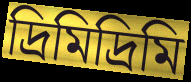
দ্রিমিদ্রিমি